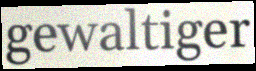
gewaltiger